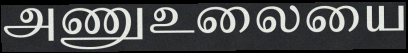
அணுஉலையை